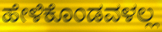
ಹೇಳಿಕೊಂಡವಳಲ್ಲ